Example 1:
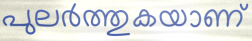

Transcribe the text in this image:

പുലർത്തുകയാണ്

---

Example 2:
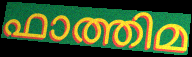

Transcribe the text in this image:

ഫാത്തിമ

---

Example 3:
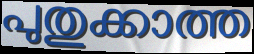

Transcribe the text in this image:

പുതുക്കാത്ത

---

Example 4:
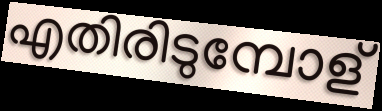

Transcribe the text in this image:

എതിരിടുമ്പോള്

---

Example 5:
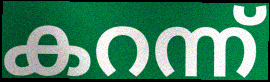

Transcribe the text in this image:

കറന്ന്